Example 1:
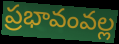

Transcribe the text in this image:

ప్రభావంవల్ల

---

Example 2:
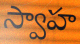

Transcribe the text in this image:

స్వాహ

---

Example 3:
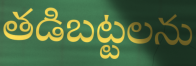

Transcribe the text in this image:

తడిబట్టలను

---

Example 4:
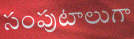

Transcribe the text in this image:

సంపుటాలుగా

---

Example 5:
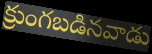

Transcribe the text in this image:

క్రుంగబడినవాడు